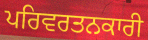
ਪਰਿਵਰਤਨਕਾਰੀ